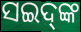
ସଇଦ୍‌ଙ୍କ